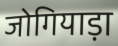
जोगियाड़ा